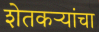
शेतकर्‍यांचा